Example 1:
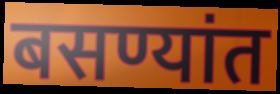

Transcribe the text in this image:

बसण्यांत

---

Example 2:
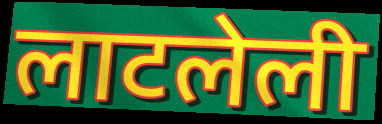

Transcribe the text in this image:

लाटलेली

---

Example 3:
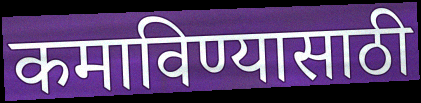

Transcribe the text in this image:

कमाविण्यासाठी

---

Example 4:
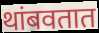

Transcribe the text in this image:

थांबवतात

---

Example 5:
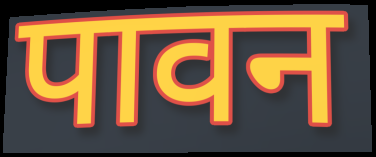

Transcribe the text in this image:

पावन